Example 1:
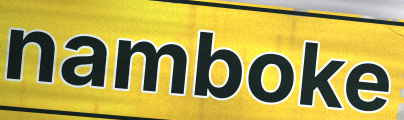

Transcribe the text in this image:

namboke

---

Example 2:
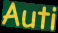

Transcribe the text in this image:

Auti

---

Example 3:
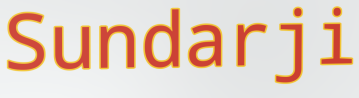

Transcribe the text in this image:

Sundarji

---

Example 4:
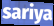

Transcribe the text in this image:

sariya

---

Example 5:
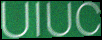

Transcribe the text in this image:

UIUC